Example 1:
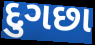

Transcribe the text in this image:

દુગછા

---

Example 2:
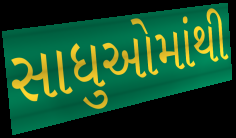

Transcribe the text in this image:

સાધુઓમાંથી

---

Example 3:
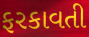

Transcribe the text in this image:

ફરકાવતી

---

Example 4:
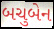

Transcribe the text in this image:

બચુબેન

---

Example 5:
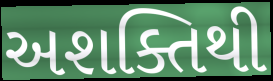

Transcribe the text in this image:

અશક્તિથી